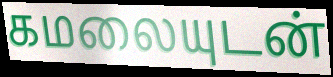
கமலையுடன்